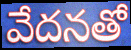
వేదనతో